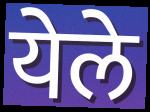
येले